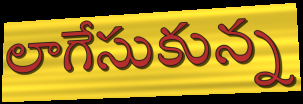
లాగేసుకున్న